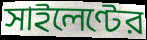
সাইলেণ্টের